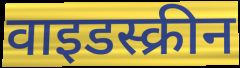
वाइडस्क्रीन